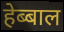
हेब्बाल